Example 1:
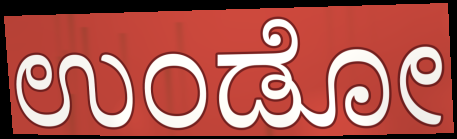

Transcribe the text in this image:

ಉಂಡೋ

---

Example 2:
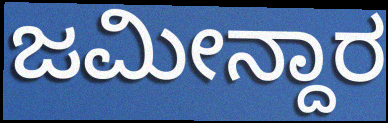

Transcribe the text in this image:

ಜಮೀನ್ದಾರ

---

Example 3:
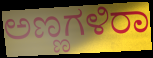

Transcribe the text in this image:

ಅಣ್ಣಗಳಿರಾ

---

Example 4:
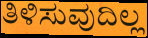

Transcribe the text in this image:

ತಿಳಿಸುವುದಿಲ್ಲ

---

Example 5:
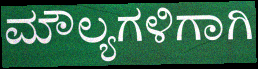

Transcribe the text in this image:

ಮೌಲ್ಯಗಳಿಗಾಗಿ